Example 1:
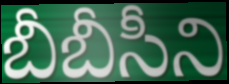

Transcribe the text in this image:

బీబీసీని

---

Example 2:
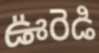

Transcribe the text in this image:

ఊరెడి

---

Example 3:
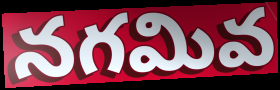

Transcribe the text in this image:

నగమివ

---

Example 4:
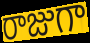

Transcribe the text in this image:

రాజుగా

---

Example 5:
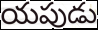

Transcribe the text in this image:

యపుడు